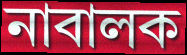
নাবালক